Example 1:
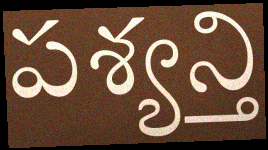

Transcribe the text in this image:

పశ్యన్తి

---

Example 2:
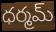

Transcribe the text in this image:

ధర్మమ్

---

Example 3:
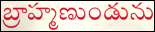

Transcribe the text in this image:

బ్రాహ్మణుండును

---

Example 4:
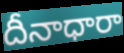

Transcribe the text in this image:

దీనాధారా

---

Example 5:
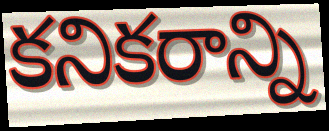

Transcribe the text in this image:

కనికరాన్ని